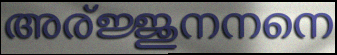
അര്ജ്ജുനനനെ